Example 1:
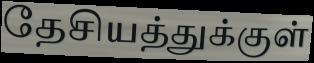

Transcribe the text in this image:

தேசியத்துக்குள்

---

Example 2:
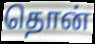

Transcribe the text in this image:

தொன்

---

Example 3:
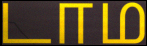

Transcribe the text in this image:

டாம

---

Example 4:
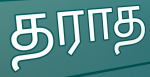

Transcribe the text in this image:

தராத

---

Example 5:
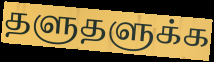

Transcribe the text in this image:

தளுதளுக்க